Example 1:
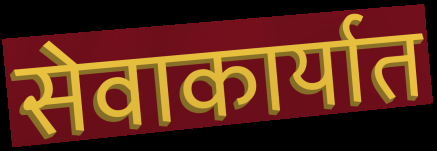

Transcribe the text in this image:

सेवाकार्यात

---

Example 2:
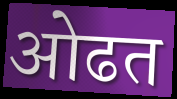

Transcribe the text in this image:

ओढत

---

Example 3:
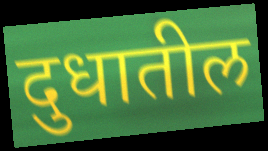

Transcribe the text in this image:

दुधातील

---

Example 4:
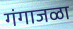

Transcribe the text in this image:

गंगाजळा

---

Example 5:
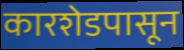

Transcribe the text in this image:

कारशेडपासून